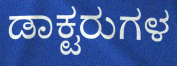
ಡಾಕ್ಟರುಗಳ